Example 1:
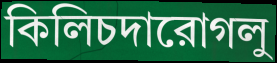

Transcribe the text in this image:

কিলিচদারোগলু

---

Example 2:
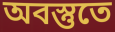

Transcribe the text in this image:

অবস্তুতে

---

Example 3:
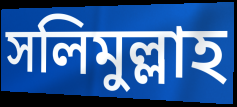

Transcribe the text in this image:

সলিমুল্লাহ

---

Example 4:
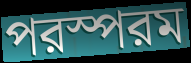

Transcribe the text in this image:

পরস্পরম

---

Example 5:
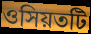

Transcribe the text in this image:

ওসিয়তটি